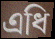
এধি